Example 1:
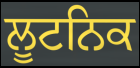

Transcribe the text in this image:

ਲੂਟਨਿਕ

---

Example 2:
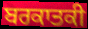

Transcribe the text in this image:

ਬਰਕਾਤਕੀ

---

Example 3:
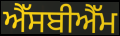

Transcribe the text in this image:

ਐੱਸਬੀਐੱਮ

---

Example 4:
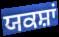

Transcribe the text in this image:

ਯਕਸ਼ਾਂ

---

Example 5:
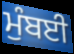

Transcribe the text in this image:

ਮੁੰਬਈ